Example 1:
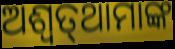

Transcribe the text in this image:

ଅଶ୍ୱତ୍‌ଥାମାଙ୍କ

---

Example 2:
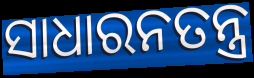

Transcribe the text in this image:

ସାଧାରନତନ୍ତ୍ର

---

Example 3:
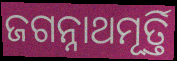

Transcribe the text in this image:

ଜଗନ୍ନାଥମୂର୍ତ୍ତି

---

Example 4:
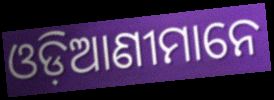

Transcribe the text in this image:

ଓଡ଼ିଆଣୀମାନେ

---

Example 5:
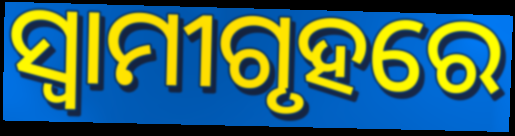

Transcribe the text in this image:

ସ୍ଵାମୀଗୃହରେ